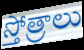
స్తోత్రాలు